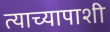
त्याच्यापाशी